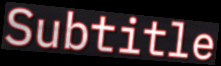
Subtitle